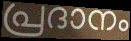
പ്രദാനം